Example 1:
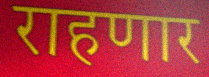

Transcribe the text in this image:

राहणार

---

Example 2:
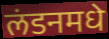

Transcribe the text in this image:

लंडनमधे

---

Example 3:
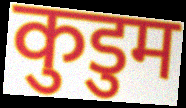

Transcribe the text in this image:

कुडुम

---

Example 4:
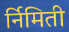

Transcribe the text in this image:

र्निमिती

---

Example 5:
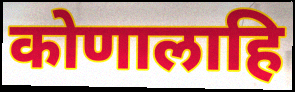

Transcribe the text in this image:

कोणालाहि